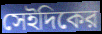
সেইদিকের